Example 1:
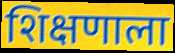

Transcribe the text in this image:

शिक्षणाला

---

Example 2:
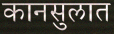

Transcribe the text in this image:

कानसुलात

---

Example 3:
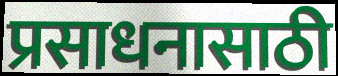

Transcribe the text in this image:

प्रसाधनासाठी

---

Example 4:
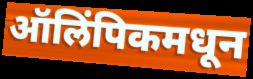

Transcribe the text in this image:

ऑलिंपिकमधून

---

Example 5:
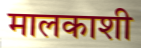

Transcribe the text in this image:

मालकाशी